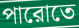
পারোতে